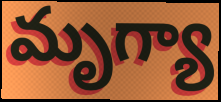
మృగ్యా